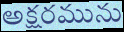
అక్షరమును